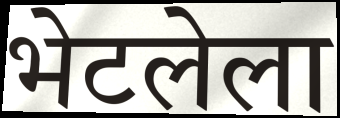
भेटलेला